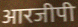
आरजीपी